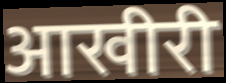
आखीरी